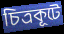
চিত্রকূটে